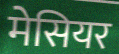
मेसियर